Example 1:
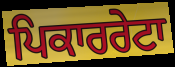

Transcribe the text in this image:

ਪਿਕਾਰਰੇਟਾ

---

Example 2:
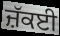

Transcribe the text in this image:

ਜ਼ੱਕਈ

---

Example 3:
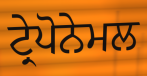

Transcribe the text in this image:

ਟ੍ਰੇਪੋਨੇਮਲ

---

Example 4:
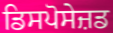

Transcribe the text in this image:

ਡਿਸਪੋਸੇਜ਼ਡ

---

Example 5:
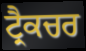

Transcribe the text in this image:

ਟ੍ਰੈਕਚਰ